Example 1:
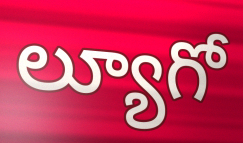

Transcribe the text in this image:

ల్యూగో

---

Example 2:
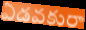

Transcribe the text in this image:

ఏడవకురా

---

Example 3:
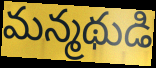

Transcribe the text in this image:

మన్మథుడి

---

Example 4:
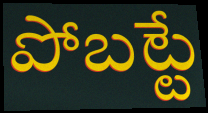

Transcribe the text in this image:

పోబట్టే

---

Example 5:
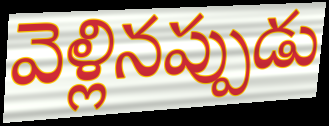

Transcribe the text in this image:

వెళ్లినప్పుడు